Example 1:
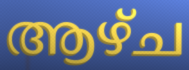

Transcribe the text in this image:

ആഴ്ച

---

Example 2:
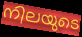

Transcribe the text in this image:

നിലയുടെ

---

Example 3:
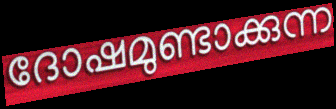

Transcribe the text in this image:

ദോഷമുണ്ടാക്കുന്ന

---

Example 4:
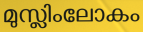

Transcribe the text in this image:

മുസ്ലിംലോകം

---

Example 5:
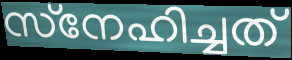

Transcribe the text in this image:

സ്‌നേഹിച്ചത്